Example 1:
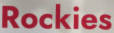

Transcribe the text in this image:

Rockies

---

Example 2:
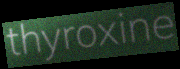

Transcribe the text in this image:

thyroxine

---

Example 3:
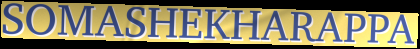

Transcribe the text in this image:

SOMASHEKHARAPPA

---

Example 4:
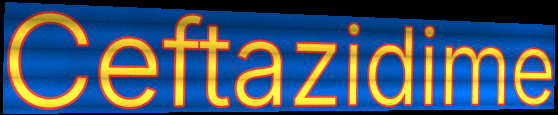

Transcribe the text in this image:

Ceftazidime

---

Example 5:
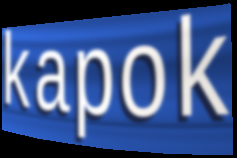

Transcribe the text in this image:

kapok